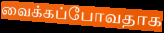
வைக்கப்போவதாக